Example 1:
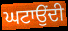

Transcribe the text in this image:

ਘਟਾਉਂਦੀ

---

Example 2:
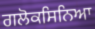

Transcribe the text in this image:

ਗਲੋਕਸਿਨਿਆ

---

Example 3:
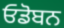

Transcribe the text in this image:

ਓਡੋਬਨ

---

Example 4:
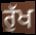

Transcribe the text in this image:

ਰੁੱਖ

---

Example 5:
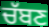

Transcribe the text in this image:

ਚੱਬਣ